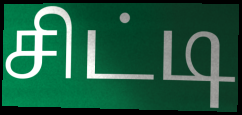
சிட்டி